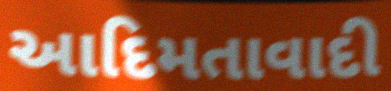
આદિમતાવાદી